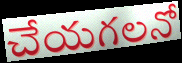
చేయగలనో